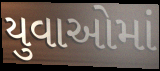
યુવાઓમાં